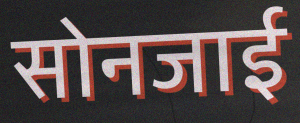
सोनजाई